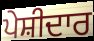
ਪੇਸ਼ੀਦਾਰ